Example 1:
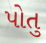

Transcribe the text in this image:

પોતુ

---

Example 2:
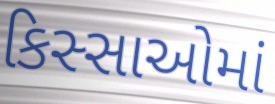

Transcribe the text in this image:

કિસ્સાઓમાં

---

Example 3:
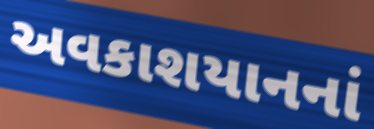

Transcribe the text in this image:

અવકાશયાનનાં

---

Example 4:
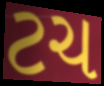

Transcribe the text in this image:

ટચ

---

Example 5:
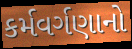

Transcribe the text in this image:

કર્મવર્ગણાનો